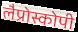
लैप्रोस्कोपी